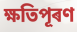
ক্ষতিপূৰণ